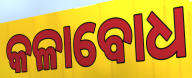
କଳାବୋଧ